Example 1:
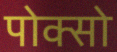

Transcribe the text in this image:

पोक्सो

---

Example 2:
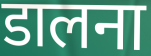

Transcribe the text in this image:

डालना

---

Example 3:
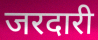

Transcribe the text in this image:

जरदारी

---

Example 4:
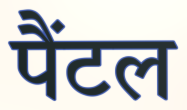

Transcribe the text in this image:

पैंटल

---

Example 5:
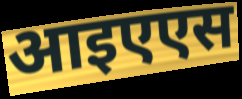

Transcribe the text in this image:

आइएएस